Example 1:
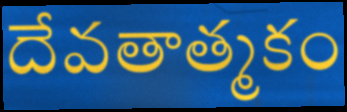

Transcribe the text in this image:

దేవతాత్మకం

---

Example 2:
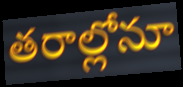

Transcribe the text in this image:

తరాల్లోనూ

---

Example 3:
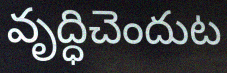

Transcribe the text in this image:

వృద్ధిచెందుట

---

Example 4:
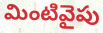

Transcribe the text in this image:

మింటివైపు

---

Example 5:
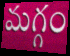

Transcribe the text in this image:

మగ్గం